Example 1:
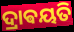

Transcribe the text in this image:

ଦ୍ରାଵୟତି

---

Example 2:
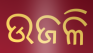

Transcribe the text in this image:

ଉଜଳି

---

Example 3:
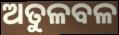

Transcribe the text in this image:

ଅତୁଳବଳ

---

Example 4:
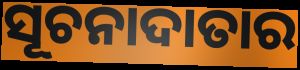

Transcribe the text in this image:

ସୂଚନାଦାତାର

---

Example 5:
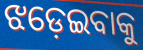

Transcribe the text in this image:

ଝଡ଼େଇବାକୁ